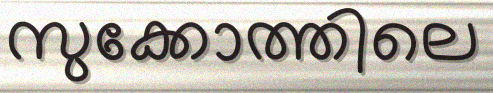
സുക്കോത്തിലെ